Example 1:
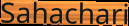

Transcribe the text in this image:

Sahachari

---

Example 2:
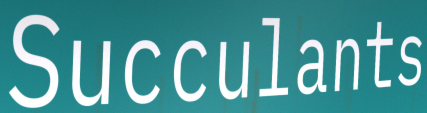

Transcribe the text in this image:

Succulants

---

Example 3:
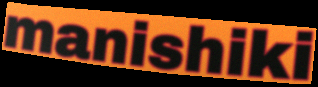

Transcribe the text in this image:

manishiki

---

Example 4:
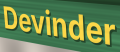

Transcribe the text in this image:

Devinder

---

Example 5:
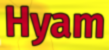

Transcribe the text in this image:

Hyam